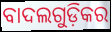
ବାଦଲଗୁଡ଼ିକର